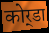
कोर्डा